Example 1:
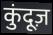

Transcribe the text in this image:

कुंदूज़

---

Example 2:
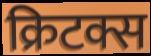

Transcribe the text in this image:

क्रिटक्स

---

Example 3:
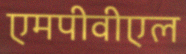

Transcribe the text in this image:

एमपीवीएल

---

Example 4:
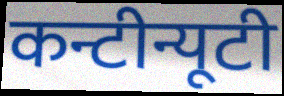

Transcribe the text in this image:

कन्टीन्यूटी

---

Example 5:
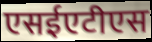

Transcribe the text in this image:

एसईएटीएस